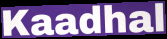
Kaadhal